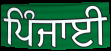
ਪਿੰਜਾਈ